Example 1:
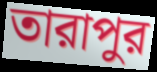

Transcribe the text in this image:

তারাপুর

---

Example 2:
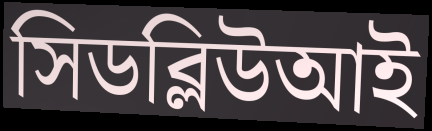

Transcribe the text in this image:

সিডব্লিউআই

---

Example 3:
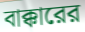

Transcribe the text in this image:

বাক্কারের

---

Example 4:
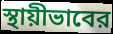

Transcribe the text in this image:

স্থায়ীভাবের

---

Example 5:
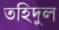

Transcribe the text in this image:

তহিদুল